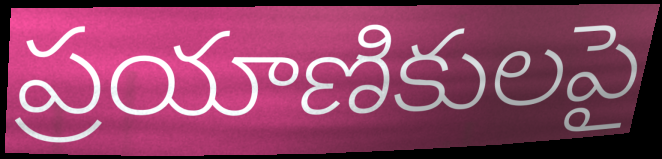
ప్రయాణికులపై